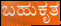
ಬಹುಕೃತ